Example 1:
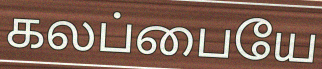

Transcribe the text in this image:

கலப்பையே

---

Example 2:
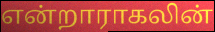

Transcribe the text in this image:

என்றாராகலின்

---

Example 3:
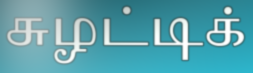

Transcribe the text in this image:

சுழட்டிக்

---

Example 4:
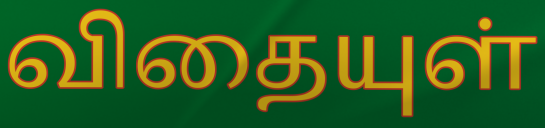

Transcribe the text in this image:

விதையுள்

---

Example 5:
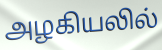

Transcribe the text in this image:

அழகியலில்